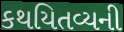
કથયિતવ્યની